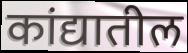
कांद्यातील